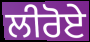
ਲੀਰੋਏ